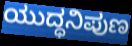
ಯುದ್ಧನಿಪುಣ